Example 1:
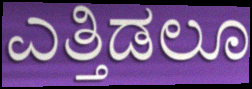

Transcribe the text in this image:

ಎತ್ತಿಡಲೂ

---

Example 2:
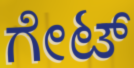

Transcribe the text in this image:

ಗೇಟ್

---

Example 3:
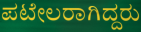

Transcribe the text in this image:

ಪಟೇಲರಾಗಿದ್ದರು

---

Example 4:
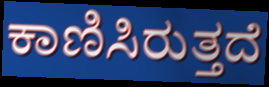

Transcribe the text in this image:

ಕಾಣಿಸಿರುತ್ತದೆ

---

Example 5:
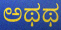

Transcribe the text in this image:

ಅಥಥ